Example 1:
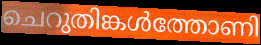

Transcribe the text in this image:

ചെറുതിങ്കൾത്തോണി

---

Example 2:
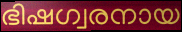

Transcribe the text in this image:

ഭിഷഗ്വരനായ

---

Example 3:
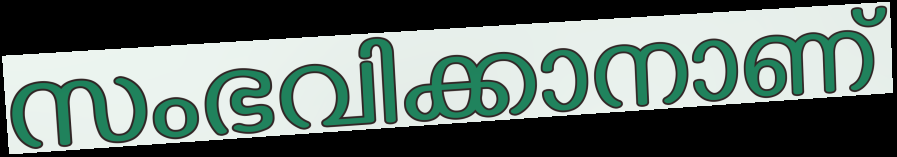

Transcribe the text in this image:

സംഭവിക്കാനാണ്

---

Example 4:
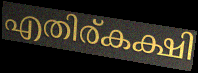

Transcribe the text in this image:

എതിര്കക്ഷി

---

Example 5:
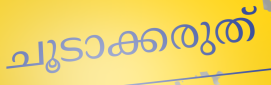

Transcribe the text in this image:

ചൂടാക്കരുത്